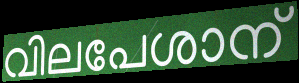
വിലപേശാന്